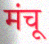
मंचू